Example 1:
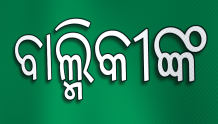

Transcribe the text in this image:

ବାଲ୍ମିକୀଙ୍କ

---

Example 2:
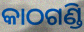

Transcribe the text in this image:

କାଠଗଣ୍ଡି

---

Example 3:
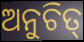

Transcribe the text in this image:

ଅନୁଚିତ୍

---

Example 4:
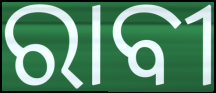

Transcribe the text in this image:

ରାବୀ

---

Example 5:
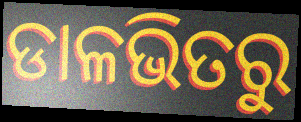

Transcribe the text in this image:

ଡାଳଭିତରୁ